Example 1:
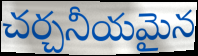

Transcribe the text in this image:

చర్చనీయమైన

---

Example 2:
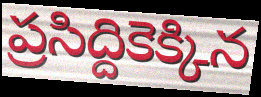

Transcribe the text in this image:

ప్రసిద్దికెక్కిన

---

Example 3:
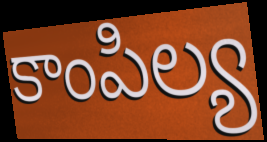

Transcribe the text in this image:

కాంపిల్య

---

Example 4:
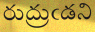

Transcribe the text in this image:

రుద్రుఁడని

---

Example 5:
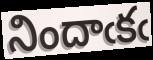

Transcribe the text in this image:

నిందాఁకఁ